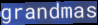
grandmas